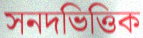
সনদভিত্তিক